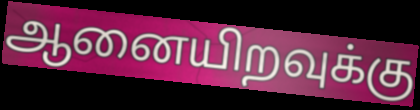
ஆனையிறவுக்கு